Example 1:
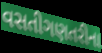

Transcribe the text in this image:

વસતીગણતરીના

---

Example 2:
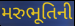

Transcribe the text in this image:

મરુભૂતિની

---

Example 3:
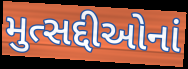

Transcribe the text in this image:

મુત્સદ્દીઓનાં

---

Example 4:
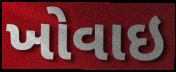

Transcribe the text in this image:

ખોવાઇ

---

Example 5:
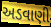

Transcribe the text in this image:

અડવાણી